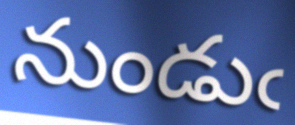
నుండుఁ